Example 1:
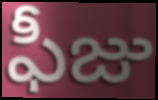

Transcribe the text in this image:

ఫీజు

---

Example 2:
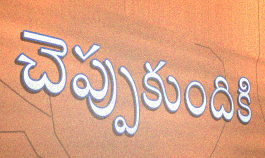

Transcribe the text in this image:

చెప్పుకుందికి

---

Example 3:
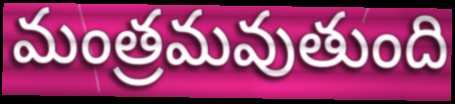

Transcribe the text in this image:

మంత్రమవుతుంది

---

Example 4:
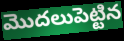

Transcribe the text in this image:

మొదలుపెట్టిన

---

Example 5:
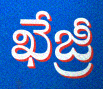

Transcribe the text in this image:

ఖేజ్రీ